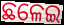
ଛଳେଇ